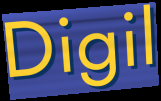
Digil